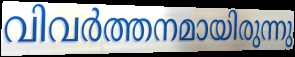
വിവർത്തനമായിരുന്നു